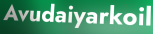
Avudaiyarkoil